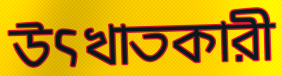
উৎখাতকারী